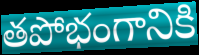
తపోభంగానికి